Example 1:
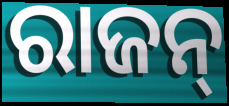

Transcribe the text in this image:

ରାଜନ୍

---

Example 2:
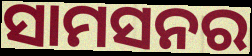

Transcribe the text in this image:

ସାମସନର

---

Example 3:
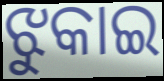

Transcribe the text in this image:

ଝୁକାଇ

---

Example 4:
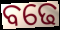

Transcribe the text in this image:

ବଢେ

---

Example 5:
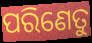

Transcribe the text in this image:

ପରିଣେତୁ